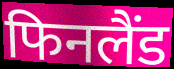
फिनलैंड